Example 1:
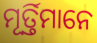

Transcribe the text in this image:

ମୂର୍ତ୍ତିମାନେ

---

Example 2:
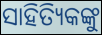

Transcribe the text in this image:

ସାହିତ୍ୟିକଙ୍କୁ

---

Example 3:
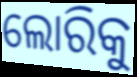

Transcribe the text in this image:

ଲୋରିକୁ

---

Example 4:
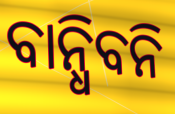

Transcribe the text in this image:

ବାନ୍ଧିବନି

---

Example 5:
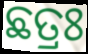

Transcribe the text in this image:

ଛତ୍ରଃ